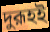
দুরূহই